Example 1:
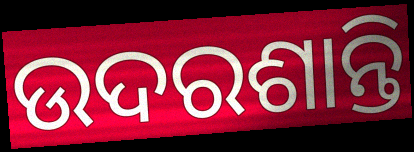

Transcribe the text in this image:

ଉଦରଶାନ୍ତି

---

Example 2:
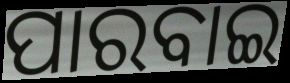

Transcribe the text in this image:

ପାରବାଇ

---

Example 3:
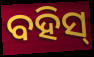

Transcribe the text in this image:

ବହିସ୍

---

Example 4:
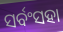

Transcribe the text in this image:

ସର୍ବଂସହା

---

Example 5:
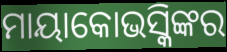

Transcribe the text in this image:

ମାୟାକୋଭସ୍କିଙ୍କର